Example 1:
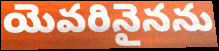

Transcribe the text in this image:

యెవరినైనను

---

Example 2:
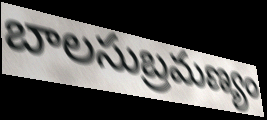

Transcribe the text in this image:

బాలసుబ్రమణ్యం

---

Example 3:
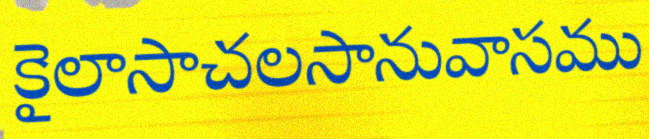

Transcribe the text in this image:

కైలాసాచలసానువాసము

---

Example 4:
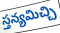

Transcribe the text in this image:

స్తన్యమిచ్చి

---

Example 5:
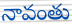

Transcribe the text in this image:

నావంతు